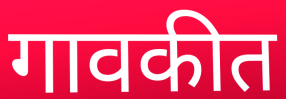
गावकीत